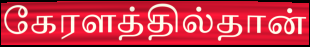
கேரளத்தில்தான்